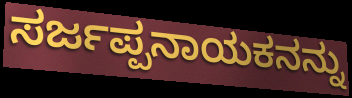
ಸರ್ಜಪ್ಪನಾಯಕನನ್ನು